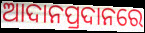
ଆଦାନପ୍ରଦାନରେ